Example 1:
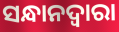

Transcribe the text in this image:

ସନ୍ଧାନଦ୍ୱାରା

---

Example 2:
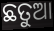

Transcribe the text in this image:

ଛତୁଆ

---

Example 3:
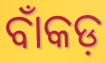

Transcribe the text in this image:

ବାଁକଡ଼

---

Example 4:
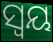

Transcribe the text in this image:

ସ୍ୱୟ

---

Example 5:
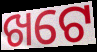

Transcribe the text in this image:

ଖଟେ